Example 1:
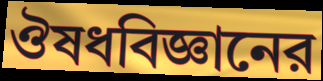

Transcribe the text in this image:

ঔষধবিজ্ঞানের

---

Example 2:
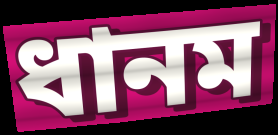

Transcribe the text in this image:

ধানম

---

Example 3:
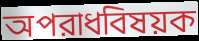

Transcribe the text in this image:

অপরাধবিষয়ক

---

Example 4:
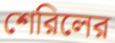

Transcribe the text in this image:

শেরিলের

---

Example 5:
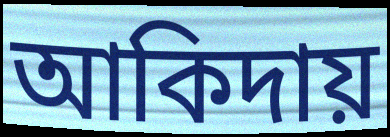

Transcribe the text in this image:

আকিদায়